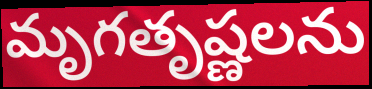
మృగతృష్ణలను